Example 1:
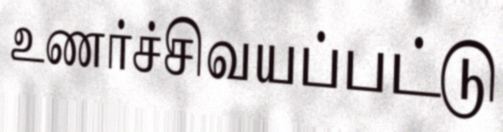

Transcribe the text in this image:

உணர்ச்சிவயப்பட்டு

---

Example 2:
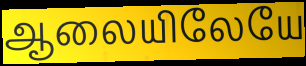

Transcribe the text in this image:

ஆலையிலேயே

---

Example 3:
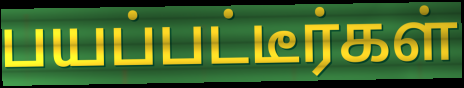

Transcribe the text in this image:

பயப்பட்டீர்கள்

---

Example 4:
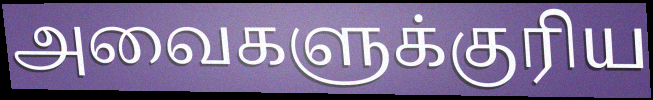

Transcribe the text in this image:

அவைகளுக்குரிய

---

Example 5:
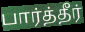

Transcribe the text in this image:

பார்த்தீர்